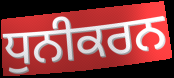
ਧੁਨੀਕਰਨ